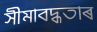
সীমাবদ্ধতাৰ